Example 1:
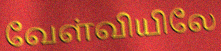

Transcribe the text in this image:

வேள்வியிலே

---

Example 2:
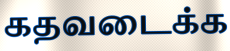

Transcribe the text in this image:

கதவடைக்க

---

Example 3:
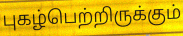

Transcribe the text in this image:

புகழ்பெற்றிருக்கும்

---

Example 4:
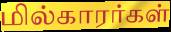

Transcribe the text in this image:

மில்காரர்கள்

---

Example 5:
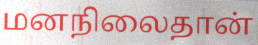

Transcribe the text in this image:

மனநிலைதான்